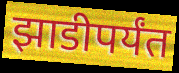
झाडीपर्यंत